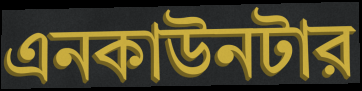
এনকাউনটার